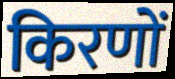
किरणों